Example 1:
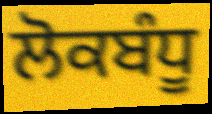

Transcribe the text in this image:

ਲੋਕਬੰਧੂ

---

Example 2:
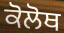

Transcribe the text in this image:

ਕੋਲੋਥ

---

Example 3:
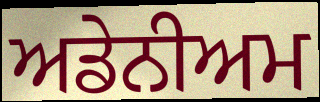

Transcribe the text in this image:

ਅਡੇਨੀਅਮ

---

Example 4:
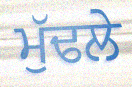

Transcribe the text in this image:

ਮੁੱਢਲੇ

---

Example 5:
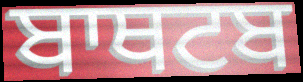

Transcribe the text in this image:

ਬਾਥਟਬ